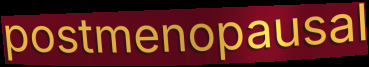
postmenopausal